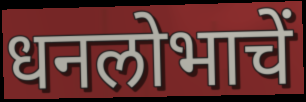
धनलोभाचें